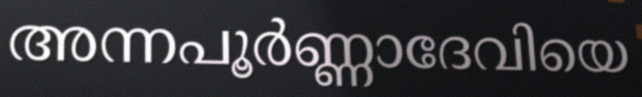
അന്നപൂർണ്ണാദേവിയെ